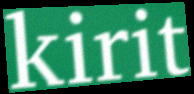
kirit